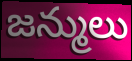
జన్ములు